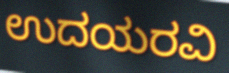
ಉದಯರವಿ